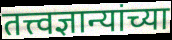
तत्त्वज्ञान्यांच्या